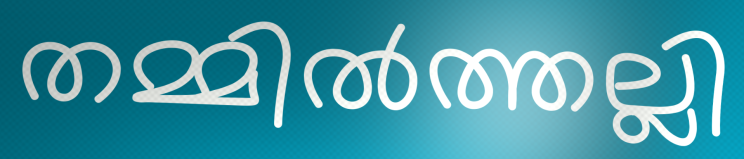
തമ്മിൽത്തല്ലി